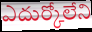
ఎదుర్కోలేని